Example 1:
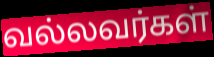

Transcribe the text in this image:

வல்லவர்கள்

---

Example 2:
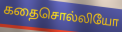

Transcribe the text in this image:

கதைசொல்லியோ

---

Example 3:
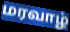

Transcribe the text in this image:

மரவாழ்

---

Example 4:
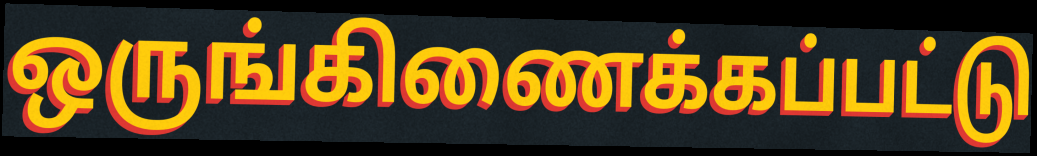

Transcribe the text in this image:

ஒருங்கிணைக்கப்பட்டு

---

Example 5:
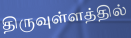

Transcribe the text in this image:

திருவுள்ளத்தில்